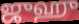
ஜுஹு